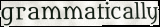
grammatically